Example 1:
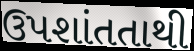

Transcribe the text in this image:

ઉપશાંતતાથી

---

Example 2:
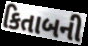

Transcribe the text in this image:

કિતાબની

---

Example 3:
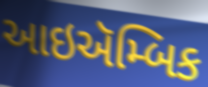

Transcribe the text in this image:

આઇઍમ્બિક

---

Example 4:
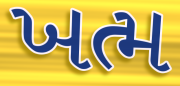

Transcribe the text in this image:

ખત્મ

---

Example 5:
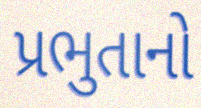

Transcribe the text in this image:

પ્રભુતાનો